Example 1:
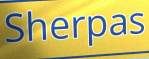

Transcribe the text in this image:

Sherpas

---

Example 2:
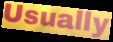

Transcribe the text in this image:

Usually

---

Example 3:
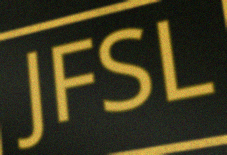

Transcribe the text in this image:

JFSL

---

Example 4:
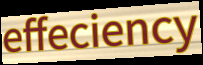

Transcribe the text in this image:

effeciency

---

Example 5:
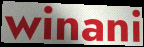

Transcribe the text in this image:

winani